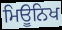
ਮਿਊਨਿਖ